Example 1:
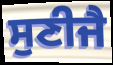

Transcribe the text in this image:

ਸੁਣੀਜੈ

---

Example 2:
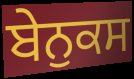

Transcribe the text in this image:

ਬੇਨੁਕਸ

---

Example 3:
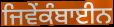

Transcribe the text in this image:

ਜਿਵੇਂਕੰਬਾਈਨ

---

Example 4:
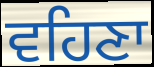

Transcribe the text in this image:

ਵਹਿਣਾ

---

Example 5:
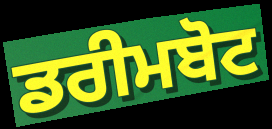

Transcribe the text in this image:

ਡਰੀਮਬੋਟ